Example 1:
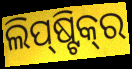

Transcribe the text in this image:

ଲିପ୍‌ଷ୍ଟିକ୍‌ର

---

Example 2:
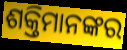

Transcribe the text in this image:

ଶକ୍ତିମାନଙ୍କର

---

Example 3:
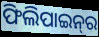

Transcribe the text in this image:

ଫିଲିପାଇନ୍‌ର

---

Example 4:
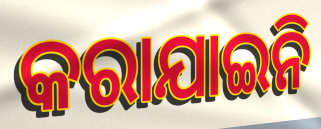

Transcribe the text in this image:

କରାଯାଇନି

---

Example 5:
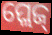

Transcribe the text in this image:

ପ୍ଲେଜ୍